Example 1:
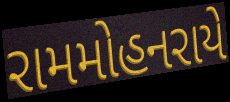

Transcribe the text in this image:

રામમોહનરાયે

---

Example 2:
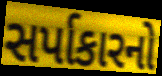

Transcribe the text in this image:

સર્પાકારનો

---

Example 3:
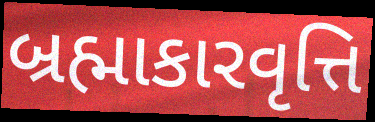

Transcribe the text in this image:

બ્રહ્માકારવૃત્તિ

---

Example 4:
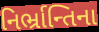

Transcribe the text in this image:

નિર્ભ્રાન્તિના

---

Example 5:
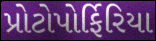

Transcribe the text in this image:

પ્રોટોપોર્ફિરિયા